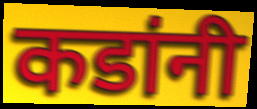
कडांनी